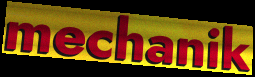
mechanik